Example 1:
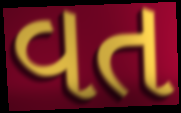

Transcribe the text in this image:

વત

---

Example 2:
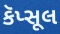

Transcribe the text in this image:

કૅપ્સૂલ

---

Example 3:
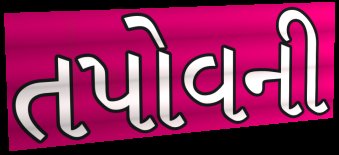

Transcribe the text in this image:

તપોવની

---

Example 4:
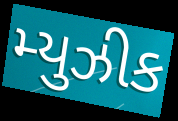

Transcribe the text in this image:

મ્યુઝીક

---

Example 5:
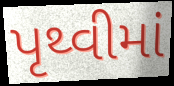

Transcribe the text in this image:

પૃથ્વીમાં